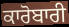
ਕਾਰੋਬਾਰੀ